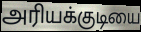
அரியக்குடியை